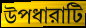
উপধারাটি